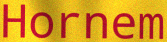
Hornem